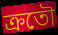
ক্রতৌ